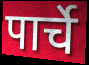
पार्चे